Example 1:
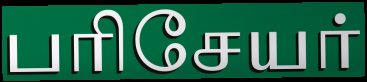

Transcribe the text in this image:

பரிசேயர்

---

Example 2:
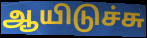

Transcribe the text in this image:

ஆயிடுச்சு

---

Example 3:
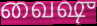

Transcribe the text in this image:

வைஷு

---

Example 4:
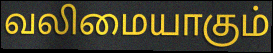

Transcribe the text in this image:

வலிமையாகும்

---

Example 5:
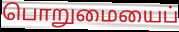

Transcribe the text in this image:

பொறுமையைப்